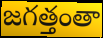
జగత్తంతా